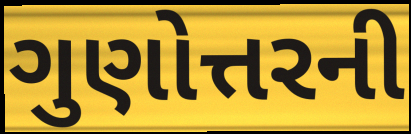
ગુણોત્તરની